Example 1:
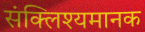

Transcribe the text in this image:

संक्लिश्यमानक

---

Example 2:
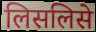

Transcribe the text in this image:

लिसलिसे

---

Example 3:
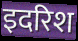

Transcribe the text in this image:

इदरिश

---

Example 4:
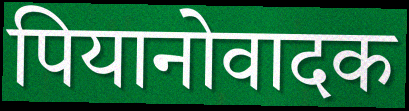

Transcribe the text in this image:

पियानोवादक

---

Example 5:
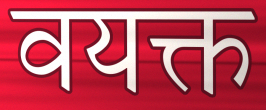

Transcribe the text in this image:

वयक्त